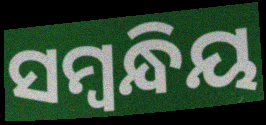
ସମ୍ଵନ୍ଧିୟ